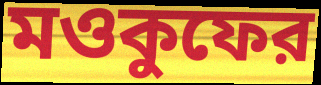
মওকুফের